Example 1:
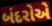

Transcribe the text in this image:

બંદરોએ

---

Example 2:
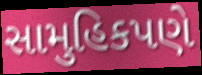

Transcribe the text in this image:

સામુહિકપણે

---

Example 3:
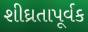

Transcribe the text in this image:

શીઘ્રતાપૂર્વક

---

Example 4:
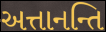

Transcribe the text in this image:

અત્તાનન્તિ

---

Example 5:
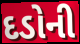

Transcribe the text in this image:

દડોની